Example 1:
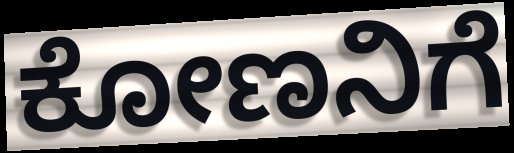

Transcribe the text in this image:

ಕೋಣನಿಗೆ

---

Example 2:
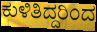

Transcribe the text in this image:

ಕುಳಿತಿದ್ದರಿಂದ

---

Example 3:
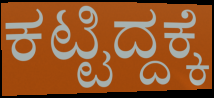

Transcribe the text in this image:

ಕಟ್ಟಿದ್ದಕ್ಕೆ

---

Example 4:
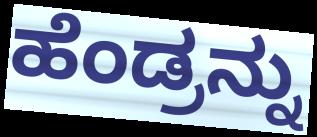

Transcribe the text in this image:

ಹೆಂಡ್ರನ್ನು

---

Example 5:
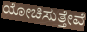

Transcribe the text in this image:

ಯೋಚಿಸುತ್ತೇವೆ